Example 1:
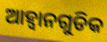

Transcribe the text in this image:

ଆହ୍ୱାନଗୁଡିକ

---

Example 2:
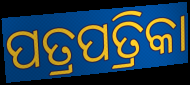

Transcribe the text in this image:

ପତ୍ରପତ୍ରିକା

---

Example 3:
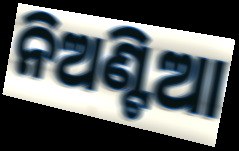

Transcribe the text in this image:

ନିଅଣ୍ଟିଆ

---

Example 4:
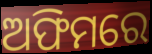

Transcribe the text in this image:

ଅଫିମରେ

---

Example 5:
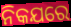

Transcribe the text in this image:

ନିକଯରେ